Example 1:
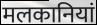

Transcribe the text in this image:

मलकानियां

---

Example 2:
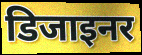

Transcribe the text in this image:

डिजाइनर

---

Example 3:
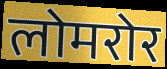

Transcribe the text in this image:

लोमरोर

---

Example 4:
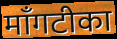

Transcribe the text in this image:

माँगटीका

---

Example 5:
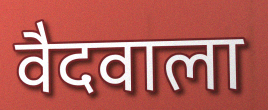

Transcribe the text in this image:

वैदवाला